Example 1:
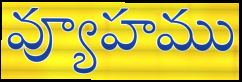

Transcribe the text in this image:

వ్యూహము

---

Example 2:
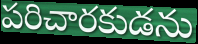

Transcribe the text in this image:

పరిచారకుడను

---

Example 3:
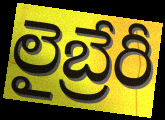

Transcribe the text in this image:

లైబ్రేరీ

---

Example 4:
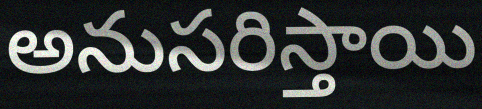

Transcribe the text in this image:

అనుసరిస్తాయి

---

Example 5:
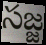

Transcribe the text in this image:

సజ్జ